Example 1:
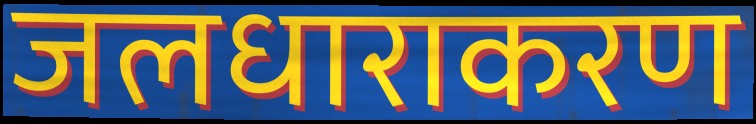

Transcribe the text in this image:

जलधाराकरण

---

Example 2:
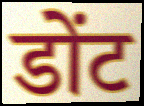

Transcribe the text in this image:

डोंट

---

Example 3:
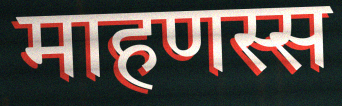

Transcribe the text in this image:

माहणस्स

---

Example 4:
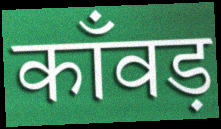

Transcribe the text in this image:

काँवड़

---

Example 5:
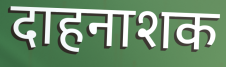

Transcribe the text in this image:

दाहनाशक